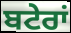
ਬਟੇਰਾਂ